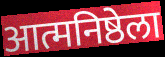
आत्मनिष्ठेला